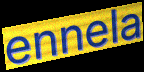
ennela